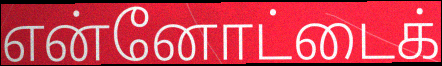
என்னோட்டைக்